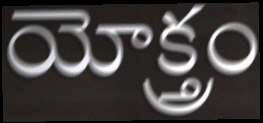
యోక్త్రం